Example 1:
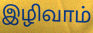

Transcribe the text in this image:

இழிவாம்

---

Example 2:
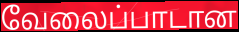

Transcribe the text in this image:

வேலைப்பாடான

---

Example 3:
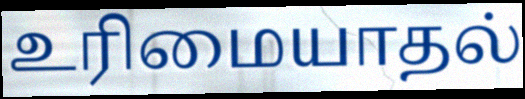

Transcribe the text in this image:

உரிமையாதல்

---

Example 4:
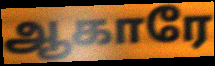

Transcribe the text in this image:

ஆகாரே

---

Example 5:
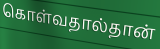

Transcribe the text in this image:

கொள்வதால்தான்